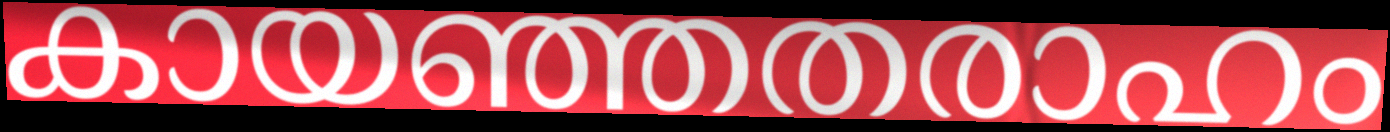
കായഞ്ഞതരാഹം